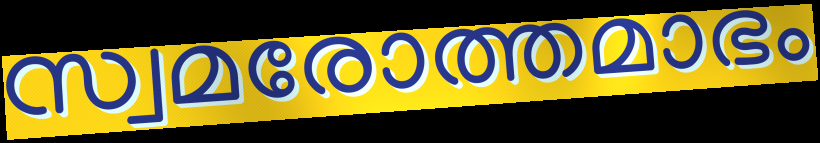
സ്വമരോത്തമാഭം